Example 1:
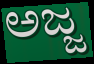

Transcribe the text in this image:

ಅಜ್ಜ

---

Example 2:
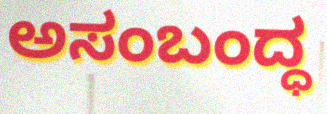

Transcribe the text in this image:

ಅಸಂಬಂದ್ಧ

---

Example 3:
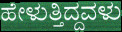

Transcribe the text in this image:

ಹೇಳುತ್ತಿದ್ದವಳು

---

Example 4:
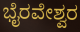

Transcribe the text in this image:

ಭೈರವೇಶ್ವರ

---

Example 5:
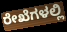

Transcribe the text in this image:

ರೇಖೆಗಳಲ್ಲಿ